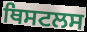
ਥਿਸਟਲਸ